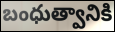
బంధుత్వానికి